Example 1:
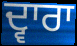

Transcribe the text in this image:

ਦ੍ਵਾਰਾ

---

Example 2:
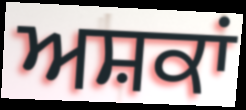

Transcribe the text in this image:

ਅਸ਼ਕਾਂ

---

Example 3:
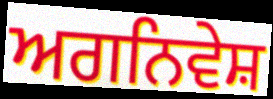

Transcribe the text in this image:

ਅਗਨਿਵੇਸ਼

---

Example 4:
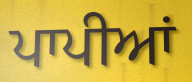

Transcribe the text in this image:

ਪਾਪੀਆਂ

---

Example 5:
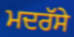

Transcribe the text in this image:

ਮਦਰੱਸੇ